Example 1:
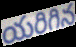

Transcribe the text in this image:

యరిగిన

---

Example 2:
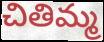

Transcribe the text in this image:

చితిమ్మ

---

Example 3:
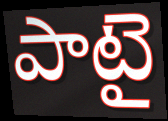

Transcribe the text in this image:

పాటై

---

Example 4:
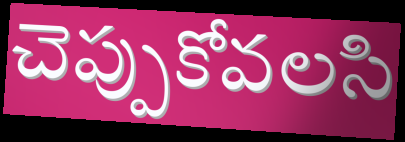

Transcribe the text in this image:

చెప్పుకోవలసి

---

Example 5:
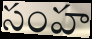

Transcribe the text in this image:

సంహ